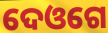
ଦେଓଗେ